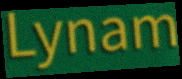
Lynam